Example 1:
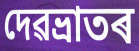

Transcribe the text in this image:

দেৱভ্ৰাতৰ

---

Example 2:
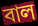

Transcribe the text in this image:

বাল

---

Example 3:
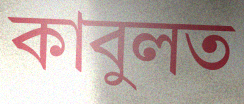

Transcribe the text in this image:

কাবুলত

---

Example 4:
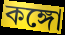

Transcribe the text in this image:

কঙ্গো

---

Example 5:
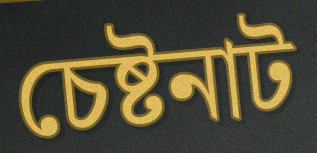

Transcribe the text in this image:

চেষ্টনাট